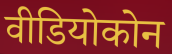
वीडियोकोन